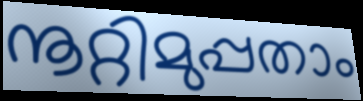
നൂറ്റിമുപ്പതാം